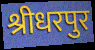
श्रीधरपुर